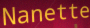
Nanette